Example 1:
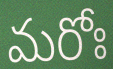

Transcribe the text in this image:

మరోః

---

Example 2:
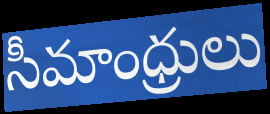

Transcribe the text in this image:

సీమాంధ్రులు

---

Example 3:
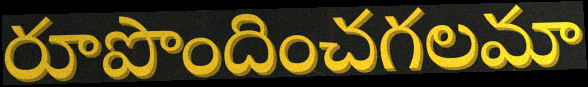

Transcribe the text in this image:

రూపొందించగలమా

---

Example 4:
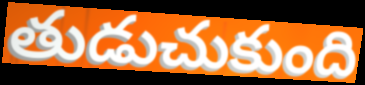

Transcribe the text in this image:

తుడుచుకుంది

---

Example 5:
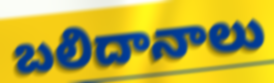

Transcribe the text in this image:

బలిదానాలు